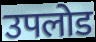
उपलोड